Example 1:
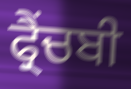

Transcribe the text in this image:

ਫ੍ਰੈਂਚਬੀ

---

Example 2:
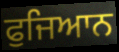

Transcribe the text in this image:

ਫੁਜਿਆਨ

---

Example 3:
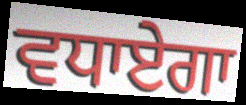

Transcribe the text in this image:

ਵਧਾਏਗਾ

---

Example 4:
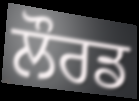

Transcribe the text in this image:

ਲੌਰਡ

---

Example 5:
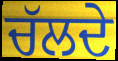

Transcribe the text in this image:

ਚੱਲਦੇ